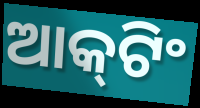
ଆକ୍‌ଟିଂ